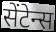
सेंटेन्स